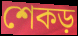
শেকড়